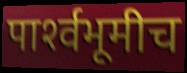
पार्श्वभूमीच